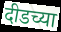
दीडच्या